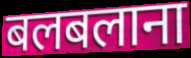
बलबलाना